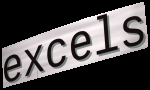
excels